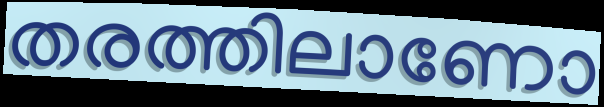
തരത്തിലാണോ